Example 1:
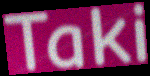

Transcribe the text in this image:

Taki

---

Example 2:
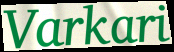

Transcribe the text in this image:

Varkari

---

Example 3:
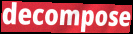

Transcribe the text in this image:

decompose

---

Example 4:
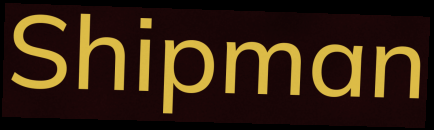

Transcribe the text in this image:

Shipman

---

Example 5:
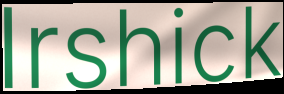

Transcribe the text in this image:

Irshick